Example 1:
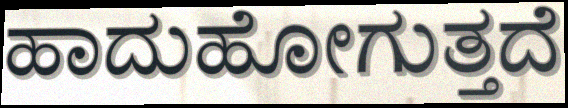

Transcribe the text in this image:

ಹಾದುಹೋಗುತ್ತದೆ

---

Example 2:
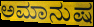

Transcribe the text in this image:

ಅಮಾನುಷ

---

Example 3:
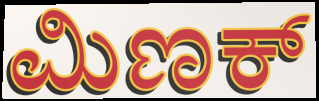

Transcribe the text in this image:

ಮಿಣಕ್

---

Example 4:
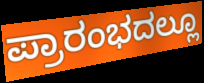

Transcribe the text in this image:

ಪ್ರಾರಂಭದಲ್ಲೂ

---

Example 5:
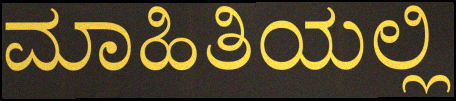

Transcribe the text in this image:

ಮಾಹಿತಿಯಲ್ಲಿ